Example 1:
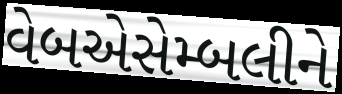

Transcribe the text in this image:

વેબએસેમ્બલીને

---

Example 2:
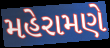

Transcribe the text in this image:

મહેરામણે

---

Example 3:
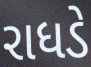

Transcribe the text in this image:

રાધડે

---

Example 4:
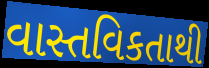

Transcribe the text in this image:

વાસ્તવિકતાથી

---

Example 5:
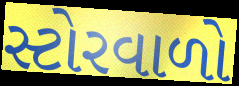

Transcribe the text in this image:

સ્ટોરવાળો